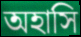
অহাসি